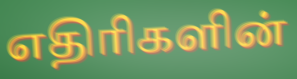
எதிரிகளின்